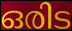
ഒരിട